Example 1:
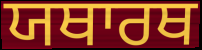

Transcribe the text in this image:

ਯਥਾਰਥ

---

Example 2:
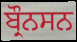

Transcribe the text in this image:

ਬ੍ਰੌਨਸਨ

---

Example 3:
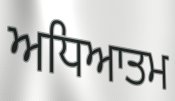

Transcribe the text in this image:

ਅਧਿਆਤਮ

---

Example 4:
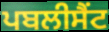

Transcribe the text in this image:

ਪਬਲੀਸੈਂਟ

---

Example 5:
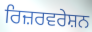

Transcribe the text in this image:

ਰਿਜ਼ਰਵਰੇਸ਼ਨ